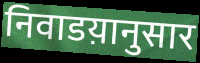
निवाडय़ानुसार